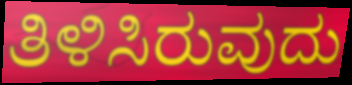
ತಿಳಿಸಿರುವುದು